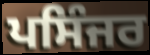
ਪਸਿੰਜਰ